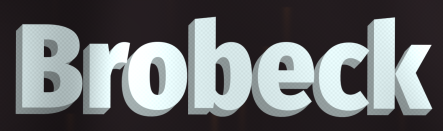
Brobeck